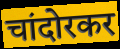
चांदोरकर